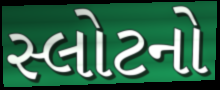
સ્લોટનો